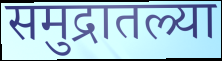
समुद्रातल्या